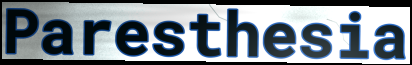
Paresthesia